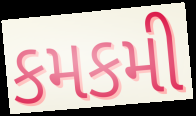
કમકમી